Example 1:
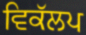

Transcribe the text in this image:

ਵਿਕੱਲਪ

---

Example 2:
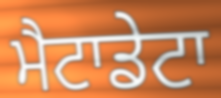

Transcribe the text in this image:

ਮੈਟਾਡੇਟਾ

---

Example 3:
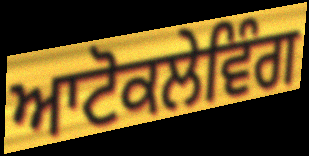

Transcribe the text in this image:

ਆਟੋਕਲੇਵਿੰਗ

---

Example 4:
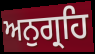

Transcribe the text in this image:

ਅਨੁਗ੍ਰਹਿ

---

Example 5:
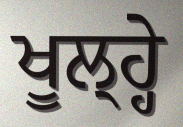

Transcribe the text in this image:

ਖੂਲ੍ਹ੍ਹੇ